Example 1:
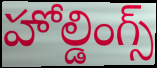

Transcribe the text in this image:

హోల్డింగ్స్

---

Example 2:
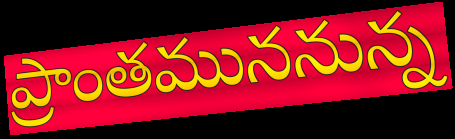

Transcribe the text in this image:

ప్రాంతముననున్న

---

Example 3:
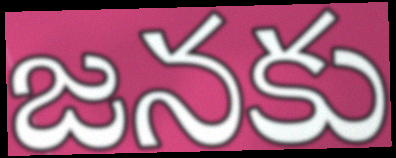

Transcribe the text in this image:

జనకు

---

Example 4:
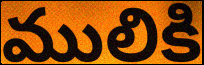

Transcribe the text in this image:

ములికి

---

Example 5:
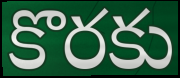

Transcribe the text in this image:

కొరకు